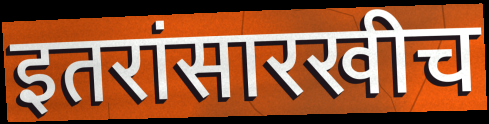
इतरांसारखीच